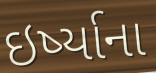
ઇર્ષ્યાના